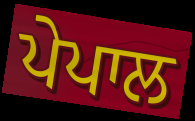
ਪੇਪਾਲ